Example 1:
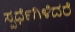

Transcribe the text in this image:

ಸ್ಪರ್ಧೆಗಿಳಿದರೆ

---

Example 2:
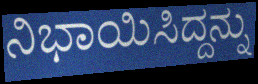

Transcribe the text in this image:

ನಿಭಾಯಿಸಿದ್ದನ್ನು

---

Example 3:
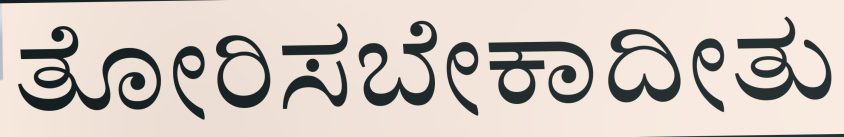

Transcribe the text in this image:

ತೋರಿಸಬೇಕಾದೀತು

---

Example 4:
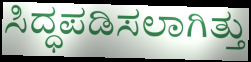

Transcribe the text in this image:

ಸಿದ್ಧಪಡಿಸಲಾಗಿತ್ತು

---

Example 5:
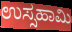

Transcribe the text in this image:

ಉಸ್ಸಹಾಮಿ